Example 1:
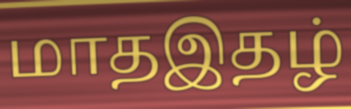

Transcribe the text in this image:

மாதஇதழ்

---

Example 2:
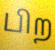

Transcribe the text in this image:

பிற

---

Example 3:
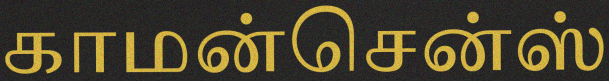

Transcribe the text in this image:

காமன்சென்ஸ்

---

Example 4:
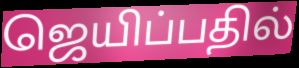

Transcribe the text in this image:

ஜெயிப்பதில்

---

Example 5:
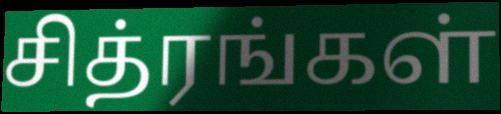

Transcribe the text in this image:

சித்ரங்கள்